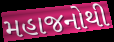
મહાજનોથી